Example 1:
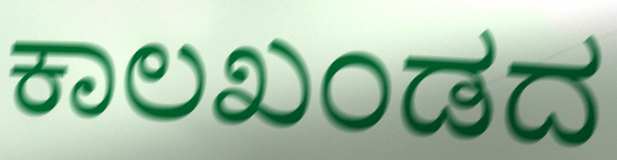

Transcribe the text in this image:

ಕಾಲಖಂಡದ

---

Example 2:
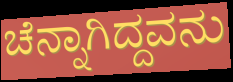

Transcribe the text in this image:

ಚೆನ್ನಾಗಿದ್ದವನು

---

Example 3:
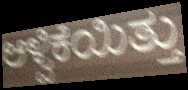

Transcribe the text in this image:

ಆಳ್ವಿಕೆಯಿತ್ತು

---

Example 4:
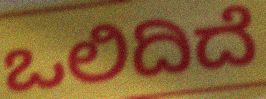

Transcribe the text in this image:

ಒಲಿದಿದೆ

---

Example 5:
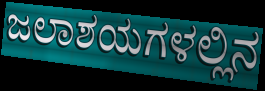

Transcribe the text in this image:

ಜಲಾಶಯಗಳಲ್ಲಿನ